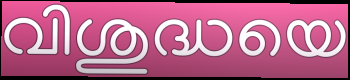
വിശുദ്ധയെ